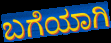
ಬಗೆಯಾಗಿ